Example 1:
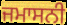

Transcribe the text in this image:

ਜਮਾਸਨੀ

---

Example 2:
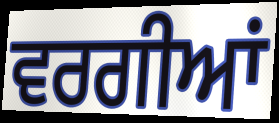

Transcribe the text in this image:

ਵਰਗੀਆਂ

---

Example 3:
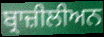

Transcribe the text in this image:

ਬ੍ਰਾਜ਼ੀਲੀਅਨ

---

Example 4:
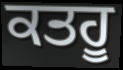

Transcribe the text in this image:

ਕਤਹੂ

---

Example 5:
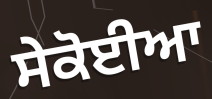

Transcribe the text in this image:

ਸੇਕੋਈਆ